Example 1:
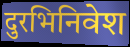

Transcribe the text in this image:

दुरभिनिवेश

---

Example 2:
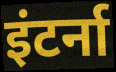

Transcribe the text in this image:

इंटर्ना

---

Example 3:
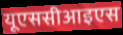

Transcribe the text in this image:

यूएससीआइएस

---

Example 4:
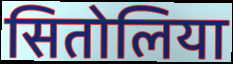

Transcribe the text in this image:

सितोलिया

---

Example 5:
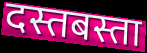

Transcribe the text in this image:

दस्तबस्ता